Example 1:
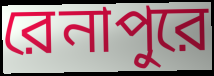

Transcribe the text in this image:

রেনাপুরে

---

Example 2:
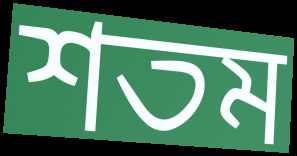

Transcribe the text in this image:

শতম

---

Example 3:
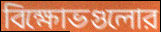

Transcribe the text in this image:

বিক্ষোভগুলোর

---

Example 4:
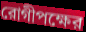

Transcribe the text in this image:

রোগীপক্ষের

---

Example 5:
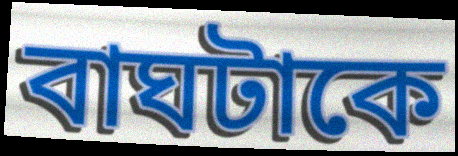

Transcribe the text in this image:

বাঘটাকে